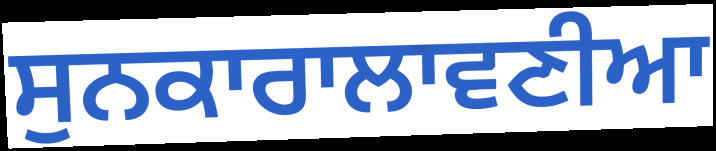
ਸੁਨਕਾਰਾਲਾਵਣੀਆ